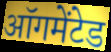
ऑगमेंटेड